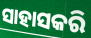
ସାହାସକରି